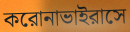
করোনাভাইরাসে